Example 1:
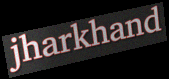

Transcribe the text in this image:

jharkhand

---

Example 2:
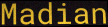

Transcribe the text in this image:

Madian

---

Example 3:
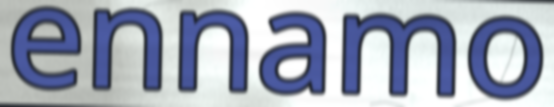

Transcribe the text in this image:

ennamo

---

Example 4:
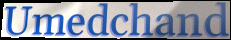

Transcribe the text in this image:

Umedchand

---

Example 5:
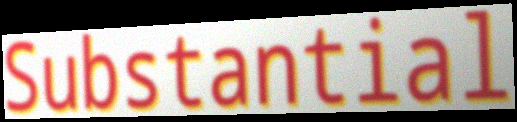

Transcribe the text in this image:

Substantial